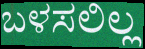
ಬಳಸಲಿಲ್ಲ